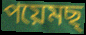
পয়েমছ্